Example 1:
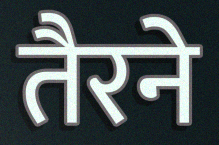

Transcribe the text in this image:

तैरने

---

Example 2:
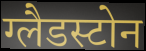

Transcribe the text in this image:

ग्लैडस्टोन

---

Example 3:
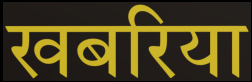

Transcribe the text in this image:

खबरिया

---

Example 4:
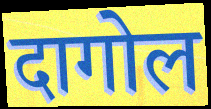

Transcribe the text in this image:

दागोल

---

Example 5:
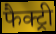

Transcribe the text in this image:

फैक्ट्री